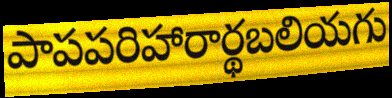
పాపపరిహారార్థబలియగు